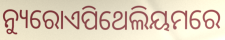
ନ୍ୟୁରୋଏପିଥେଲିୟମରେ